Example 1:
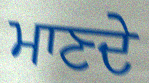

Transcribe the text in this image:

ਮਾਣਦੇ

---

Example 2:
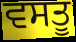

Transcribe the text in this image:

ਵਸਤੂ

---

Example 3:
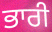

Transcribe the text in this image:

ਭਾਰੀ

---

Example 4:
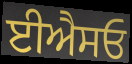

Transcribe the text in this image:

ਈਐਸਓ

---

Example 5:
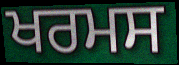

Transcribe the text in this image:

ਖਰਮਸ